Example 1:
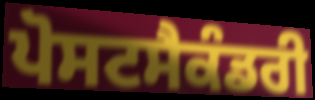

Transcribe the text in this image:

ਪੋਸਟਸੈਕੰਡਰੀ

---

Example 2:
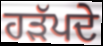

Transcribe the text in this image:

ਹੜੱਪਦੇ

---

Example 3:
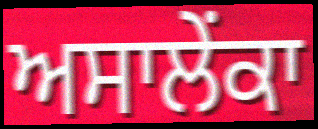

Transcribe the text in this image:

ਅਸਾਲੇਂਕਾ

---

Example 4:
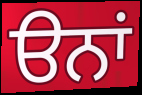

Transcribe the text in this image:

ੳਨਾਂ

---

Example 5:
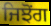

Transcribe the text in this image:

ਜਿਝੋਂਗ